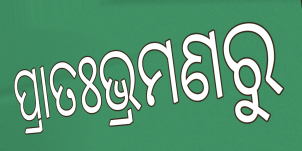
ପ୍ରାତଃଭ୍ରମଣରୁ